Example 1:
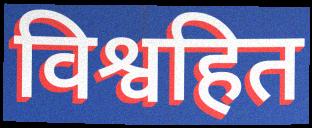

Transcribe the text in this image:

विश्वहित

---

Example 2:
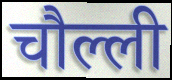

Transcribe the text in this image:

चौल्ली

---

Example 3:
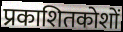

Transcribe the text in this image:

प्रकाशितकोशों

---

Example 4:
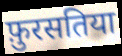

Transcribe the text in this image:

फ़ुरसतिया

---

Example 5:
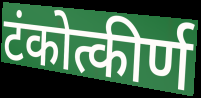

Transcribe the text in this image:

टंकोत्कीर्ण